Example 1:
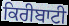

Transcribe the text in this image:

ਕਿਰੀਬਾਟੀ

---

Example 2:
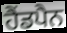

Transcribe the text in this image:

ਹੈਂਡਪੈਨ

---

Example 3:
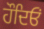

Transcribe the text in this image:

ਹੌਦਿਓਂ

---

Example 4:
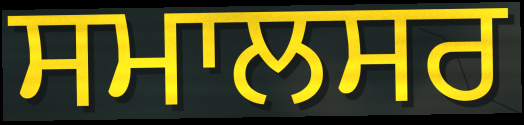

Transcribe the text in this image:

ਸਮਾਲਸਰ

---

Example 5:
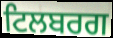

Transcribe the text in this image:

ਟਿਲਬਰਗ